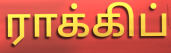
ராக்கிப்